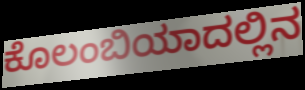
ಕೊಲಂಬಿಯಾದಲ್ಲಿನ